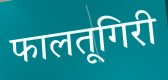
फालतूगिरी